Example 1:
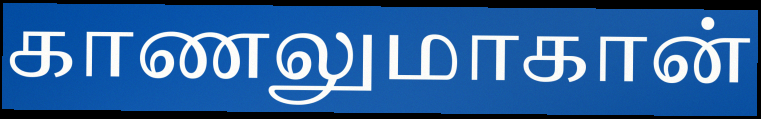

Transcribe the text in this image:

காணலுமாகான்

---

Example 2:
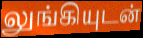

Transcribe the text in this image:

லுங்கியுடன்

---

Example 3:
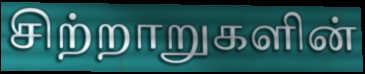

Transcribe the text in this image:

சிற்றாறுகளின்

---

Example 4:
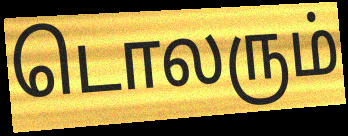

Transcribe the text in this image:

டொலரும்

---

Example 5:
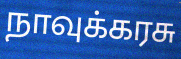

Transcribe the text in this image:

நாவுக்கரசு